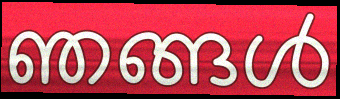
ഞങ്ങൾ